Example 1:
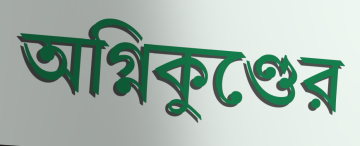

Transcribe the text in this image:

অগ্নিকুণ্ডের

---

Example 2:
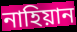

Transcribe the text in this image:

নাহিয়ান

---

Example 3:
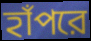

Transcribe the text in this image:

হাঁপরে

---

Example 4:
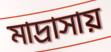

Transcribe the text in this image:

মাদ্রাসায়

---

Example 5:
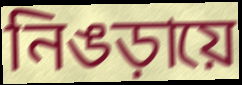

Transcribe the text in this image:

নিঙড়ায়ে